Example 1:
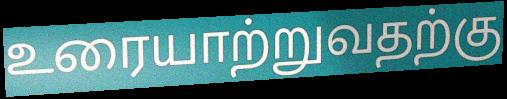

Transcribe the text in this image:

உரையாற்றுவதற்கு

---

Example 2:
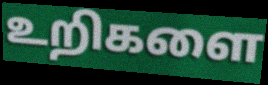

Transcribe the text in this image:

உறிகளை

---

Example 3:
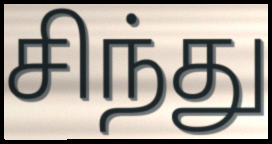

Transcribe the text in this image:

சிந்து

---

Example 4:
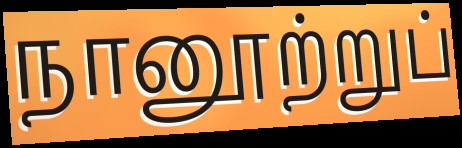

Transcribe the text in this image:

நானூற்றுப்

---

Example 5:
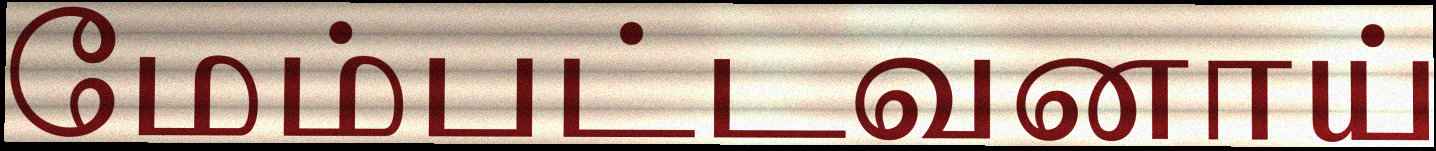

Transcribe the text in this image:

மேம்பட்டவனாய்